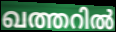
ഖത്തറിൽ